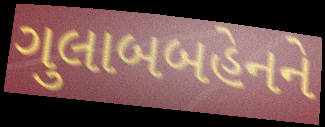
ગુલાબબહેનને